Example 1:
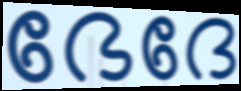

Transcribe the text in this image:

ഭേദേ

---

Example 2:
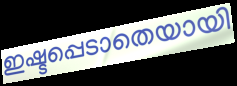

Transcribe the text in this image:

ഇഷ്ടപ്പെടാതെയായി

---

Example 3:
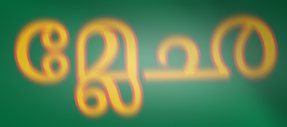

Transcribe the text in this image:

മ്ലേഛ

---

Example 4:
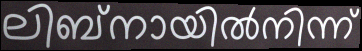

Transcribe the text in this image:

ലിബ്നായിൽനിന്ന്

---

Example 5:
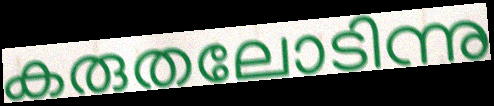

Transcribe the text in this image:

കരുതലോടിന്നു